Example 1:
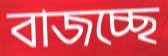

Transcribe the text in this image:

বাজচ্ছে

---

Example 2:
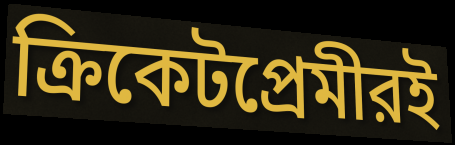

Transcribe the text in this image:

ক্রিকেটপ্রেমীরই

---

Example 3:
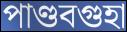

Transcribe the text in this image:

পাণ্ডবগুহা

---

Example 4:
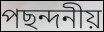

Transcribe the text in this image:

পছন্দনীয়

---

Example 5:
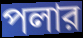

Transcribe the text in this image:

পলার